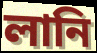
লানি